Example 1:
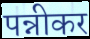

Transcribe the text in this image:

पन्नीकर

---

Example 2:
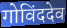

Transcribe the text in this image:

गोविंददेव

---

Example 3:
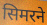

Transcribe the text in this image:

सिमरने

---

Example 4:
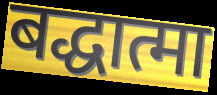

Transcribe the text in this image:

बद्धात्मा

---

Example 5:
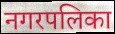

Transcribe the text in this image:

नगरपलिका